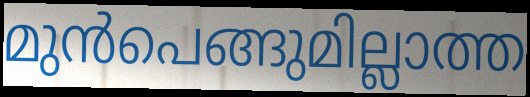
മുൻപെങ്ങുമില്ലാത്ത